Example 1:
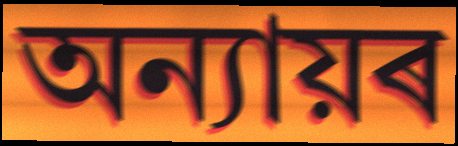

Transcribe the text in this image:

অন্যায়ৰ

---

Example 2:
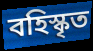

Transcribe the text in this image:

বহিস্কৃত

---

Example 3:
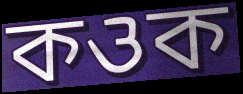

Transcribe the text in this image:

কওক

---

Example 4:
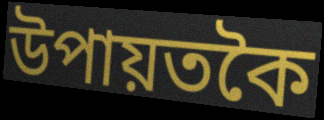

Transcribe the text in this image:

উপায়তকৈ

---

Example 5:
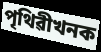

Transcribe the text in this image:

পৃথিৱীখনক